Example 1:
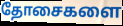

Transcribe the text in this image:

தோசைகளை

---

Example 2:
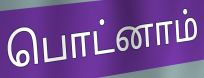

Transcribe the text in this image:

பொட்னாம்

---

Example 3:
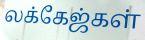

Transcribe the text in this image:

லக்கேஜ்கள்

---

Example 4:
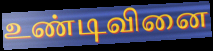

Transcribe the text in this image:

உண்டிவினை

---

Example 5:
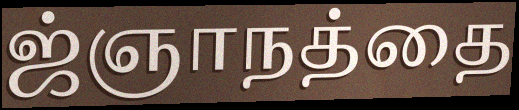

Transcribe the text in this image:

ஜ்ஞாநத்தை